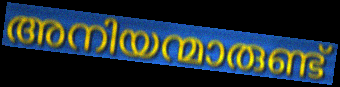
അനിയന്മാരുണ്ട്